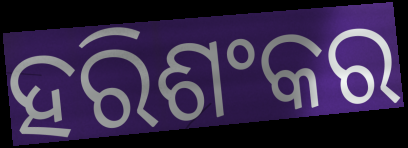
ହରିଶଂକର